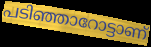
പടിഞ്ഞാറോട്ടാണ്